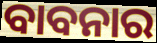
ବାବନାର